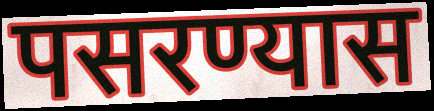
पसरण्यास